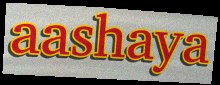
aashaya